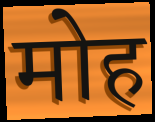
मोह